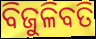
ବିଜୁଳିବତି